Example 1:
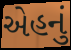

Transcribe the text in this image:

એહનું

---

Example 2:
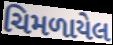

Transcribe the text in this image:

ચિમળાયેલ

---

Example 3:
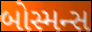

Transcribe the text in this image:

બોસ્મન્સ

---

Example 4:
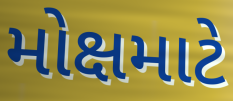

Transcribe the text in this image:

મોક્ષમાટે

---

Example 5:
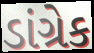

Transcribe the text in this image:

ડાંગ્રેક